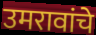
उमरावांचे